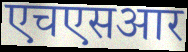
एचएसआर